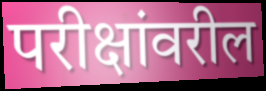
परीक्षांवरील